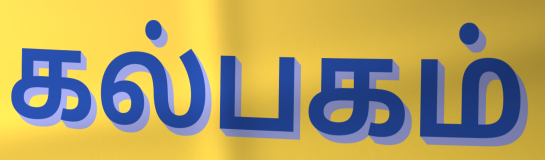
கல்பகம்